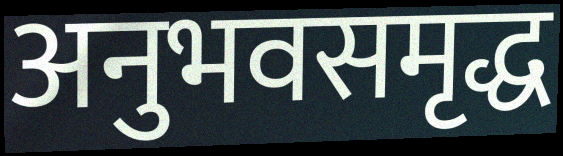
अनुभवसमृद्ध